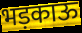
भड़काऊ